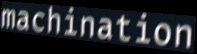
machination